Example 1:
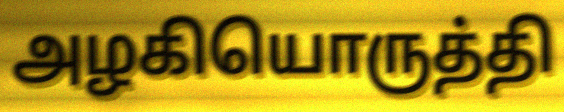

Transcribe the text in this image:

அழகியொருத்தி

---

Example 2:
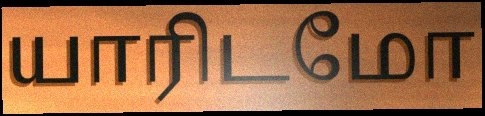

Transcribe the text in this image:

யாரிடமோ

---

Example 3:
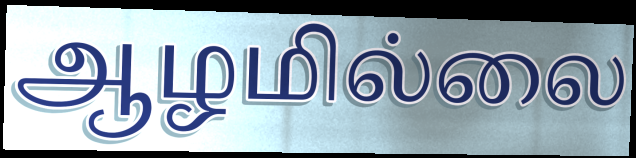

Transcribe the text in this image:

ஆழமில்லை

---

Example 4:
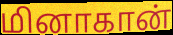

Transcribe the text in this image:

மினாகான்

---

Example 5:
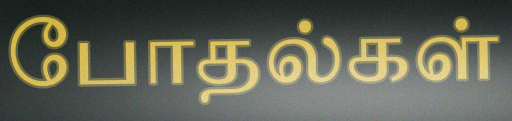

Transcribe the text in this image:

போதல்கள்